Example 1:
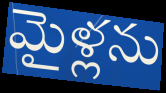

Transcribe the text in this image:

మైళ్లను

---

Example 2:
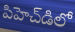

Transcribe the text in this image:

పిహెచ్‌డిలో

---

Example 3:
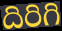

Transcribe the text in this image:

దిరిగి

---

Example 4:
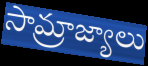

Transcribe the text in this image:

సామ్రాజ్యాలు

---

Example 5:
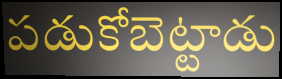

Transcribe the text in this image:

పడుకోబెట్టాడు